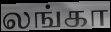
லங்கா